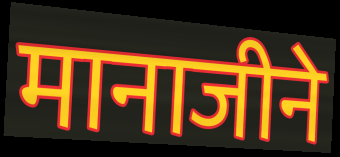
मानाजीने